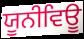
ਯੂਨੀਵਿਊ